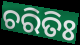
ଚରିତିଃ